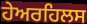
ਹੇਅਰਹਿਲਸ